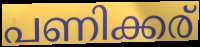
പണിക്കര്